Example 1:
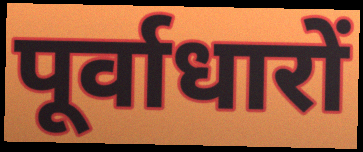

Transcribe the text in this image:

पूर्वाधारों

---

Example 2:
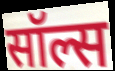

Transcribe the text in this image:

सॉल्स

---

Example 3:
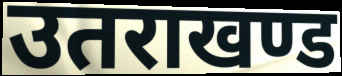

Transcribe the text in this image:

उतराखण्ड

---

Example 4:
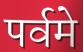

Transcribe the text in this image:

पर्वमे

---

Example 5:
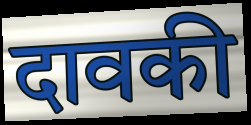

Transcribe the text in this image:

दावकी